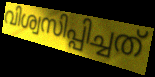
വിശ്വസിപ്പിച്ചത്